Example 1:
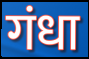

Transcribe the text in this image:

गंधा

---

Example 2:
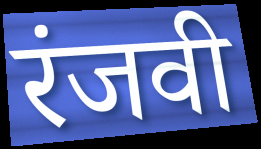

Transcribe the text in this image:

रंजवी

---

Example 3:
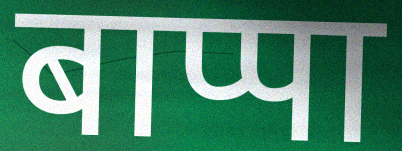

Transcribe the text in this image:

बाप्पा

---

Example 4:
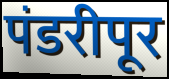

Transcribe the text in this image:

पंडरीपूर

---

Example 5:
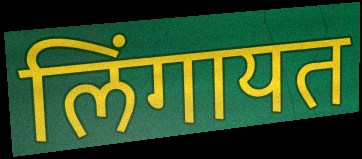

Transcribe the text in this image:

लिंगायत